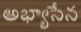
అభ్యాసేన